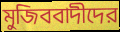
মুজিববাদীদের